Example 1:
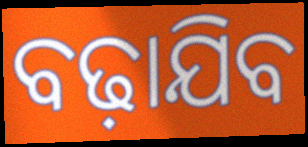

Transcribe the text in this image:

ବଢ଼ାଯିବ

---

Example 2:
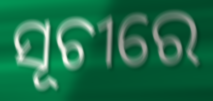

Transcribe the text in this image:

ସୂଚୀରେ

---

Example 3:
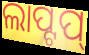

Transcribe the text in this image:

ଲାପ୍ଟପ୍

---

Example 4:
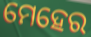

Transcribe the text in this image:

ମେହେର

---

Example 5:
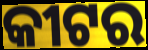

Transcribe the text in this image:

କୀଟର